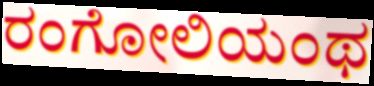
ರಂಗೋಲಿಯಂಥ